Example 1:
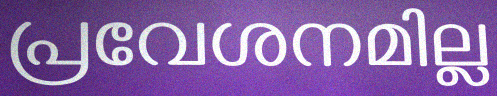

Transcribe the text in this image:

പ്രവേശനമില്ല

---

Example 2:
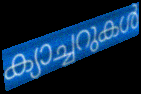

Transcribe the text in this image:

ക്യാച്ചറുകൾ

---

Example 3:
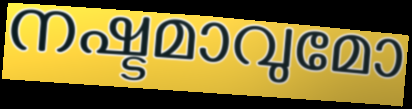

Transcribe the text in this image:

നഷ്ടമാവുമോ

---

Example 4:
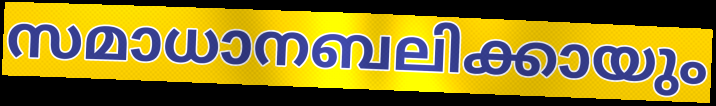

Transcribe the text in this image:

സമാധാനബലിക്കായും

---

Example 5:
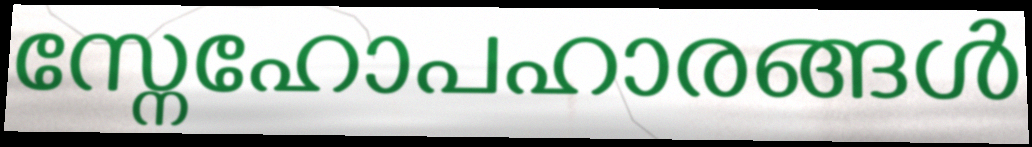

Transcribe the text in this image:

സ്നേഹോപഹാരങ്ങൾ